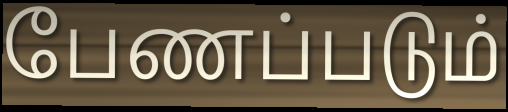
பேணப்படும்